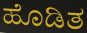
ಹೊಡಿತ